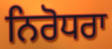
ਨਿਰੋਧਰਾ